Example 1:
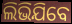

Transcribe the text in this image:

ଲିଭିଯିବେ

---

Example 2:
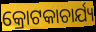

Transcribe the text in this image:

କ୍ରୋଟକାଚାର୍ଯ୍ୟ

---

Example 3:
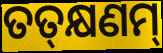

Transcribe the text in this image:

ତତ୍‌କ୍ଷଣମ୍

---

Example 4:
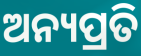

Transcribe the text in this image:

ଅନ୍ୟପ୍ରତି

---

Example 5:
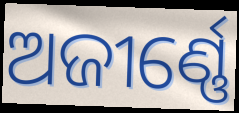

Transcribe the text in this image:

ଅଜୀର୍ଣ୍ଣେ